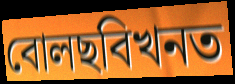
বোলছবিখনত